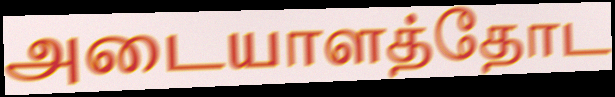
அடையாளத்தோட